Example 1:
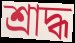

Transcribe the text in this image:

শ্ৰাদ্ধ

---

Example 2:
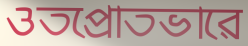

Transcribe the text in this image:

ওতপ্ৰোতভাৱে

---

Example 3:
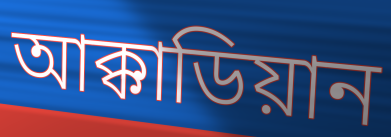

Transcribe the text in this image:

আক্কাডিয়ান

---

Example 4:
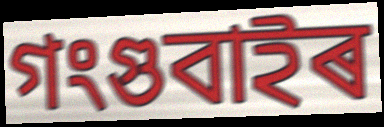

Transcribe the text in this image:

গংগুবাইৰ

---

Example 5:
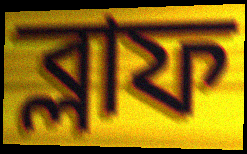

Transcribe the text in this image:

ব্লাফ